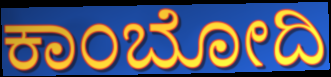
ಕಾಂಬೋದಿ